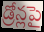
డ్రోన్లపై